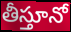
తీస్తూనో